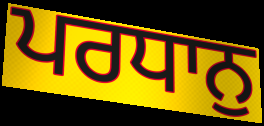
ਪਰਧਾਨੁ